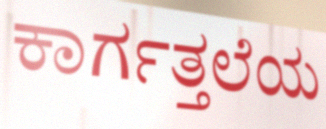
ಕಾರ್ಗತ್ತಲೆಯ